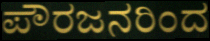
ಪೌರಜನರಿಂದ